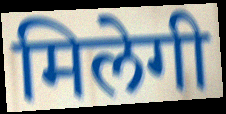
मिलेगी